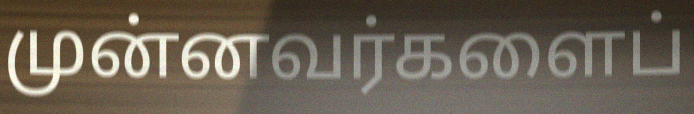
முன்னவர்களைப்